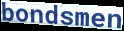
bondsmen